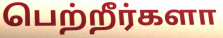
பெற்றீர்களா